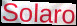
Solaro